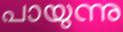
പായുന്നു